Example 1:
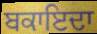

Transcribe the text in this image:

ਬਕਾਇਦਾ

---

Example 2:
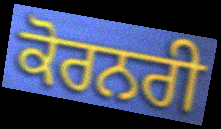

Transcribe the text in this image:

ਕੋਰਨਰੀ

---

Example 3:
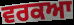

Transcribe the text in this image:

ਵਰਕਆ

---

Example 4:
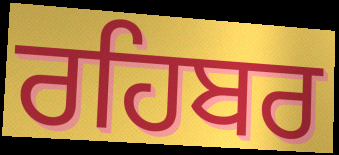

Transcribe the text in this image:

ਰਹਿਬਰ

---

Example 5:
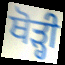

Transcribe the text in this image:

ਥੋਡ਼੍ਹੀ